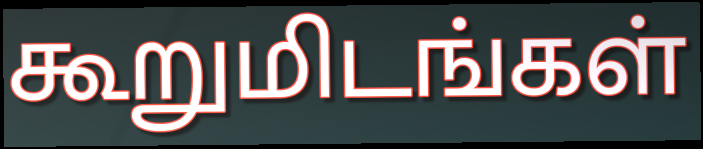
கூறுமிடங்கள்